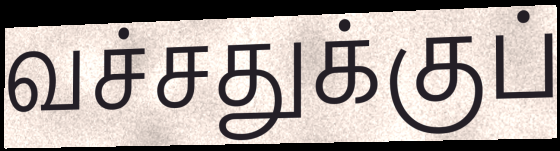
வச்சதுக்குப்